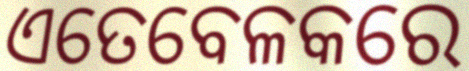
ଏତେବେଳକରେ